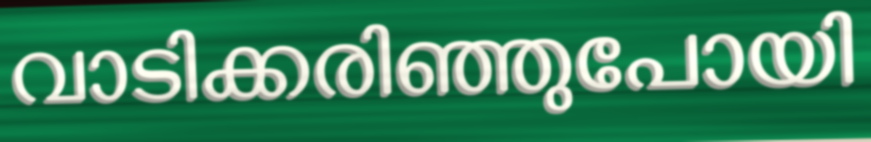
വാടിക്കരിഞ്ഞുപോയി